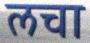
लचा